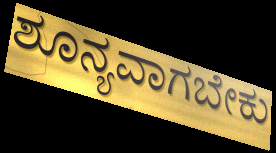
ಶೂನ್ಯವಾಗಬೇಕು